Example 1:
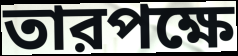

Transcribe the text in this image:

তারপক্ষে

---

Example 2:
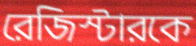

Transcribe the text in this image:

রেজিস্টারকে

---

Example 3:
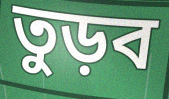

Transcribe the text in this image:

তুড়ব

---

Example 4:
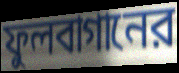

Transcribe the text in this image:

ফুলবাগানের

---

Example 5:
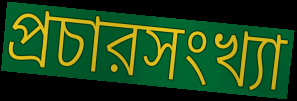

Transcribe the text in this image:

প্রচারসংখ্যা